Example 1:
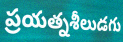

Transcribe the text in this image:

ప్రయత్నశీలుడగు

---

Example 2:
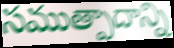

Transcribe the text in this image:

సముత్పాదాన్ని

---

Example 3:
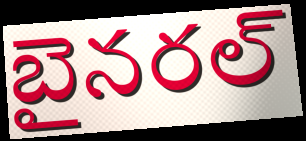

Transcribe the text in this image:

బైనరల్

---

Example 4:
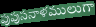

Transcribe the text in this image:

పుపుసనాళములుగా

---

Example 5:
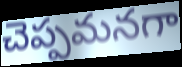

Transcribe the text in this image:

చెప్పమనగా